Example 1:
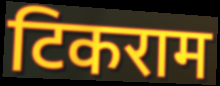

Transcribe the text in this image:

टिकराम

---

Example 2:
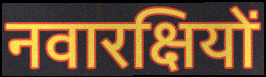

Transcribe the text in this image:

नवारक्षियों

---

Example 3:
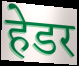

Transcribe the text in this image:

हेडर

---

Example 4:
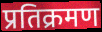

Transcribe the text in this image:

प्रतिक्रमण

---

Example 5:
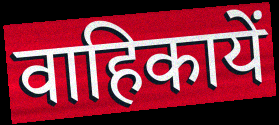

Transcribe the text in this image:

वाहिकायें